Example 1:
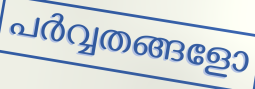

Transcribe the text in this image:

പർവ്വതങ്ങളോ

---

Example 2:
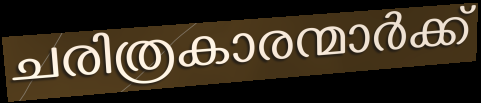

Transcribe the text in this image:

ചരിത്രകാരന്മാർക്ക്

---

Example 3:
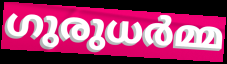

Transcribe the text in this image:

ഗുരുധർമ്മ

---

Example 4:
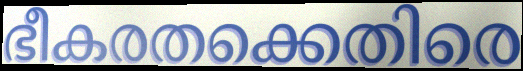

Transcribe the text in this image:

ഭീകരതക്കെതിരെ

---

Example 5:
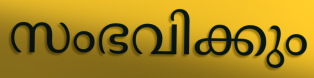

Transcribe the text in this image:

സംഭവിക്കും